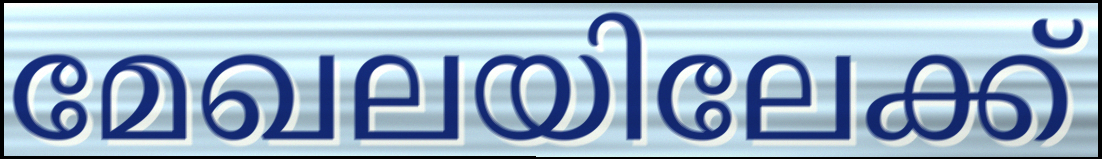
മേഖലയിലേക്ക്